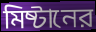
মিষ্টানের